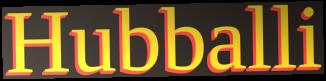
Hubballi